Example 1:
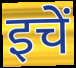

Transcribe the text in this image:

इचें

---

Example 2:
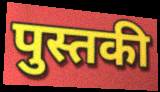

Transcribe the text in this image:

पुस्तकी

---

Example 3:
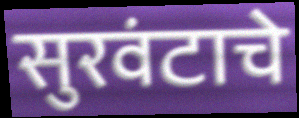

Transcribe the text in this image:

सुरवंटाचे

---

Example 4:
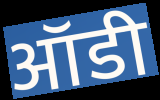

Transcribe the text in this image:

ऑडी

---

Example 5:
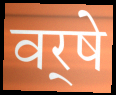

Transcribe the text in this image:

वर्षे